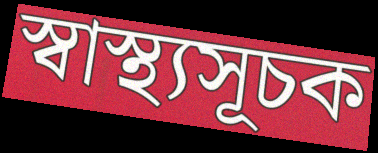
স্বাস্থ্যসূচক